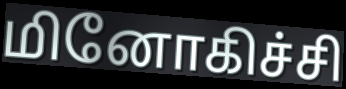
மினோகிச்சி